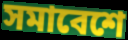
সমাবেশে